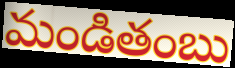
మండితంబు